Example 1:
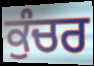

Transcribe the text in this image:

ਕੁੰਚਰ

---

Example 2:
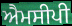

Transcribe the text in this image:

ਐਮਸੀਪੀ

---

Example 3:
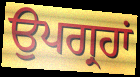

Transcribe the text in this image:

ਉਪਗ੍ਰਹਾਂ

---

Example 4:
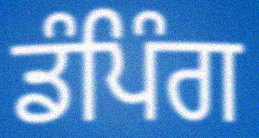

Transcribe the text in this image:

ਡੰਪਿੰਗ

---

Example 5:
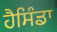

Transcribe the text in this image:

ਹੈਸਿੰਡਾ